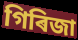
গিৰিজা